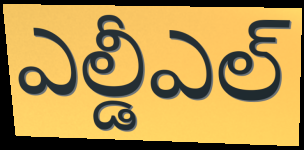
ఎల్డీఎల్